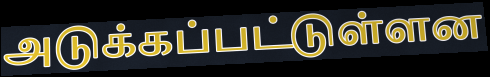
அடுக்கப்பட்டுள்ளன